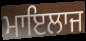
ਮਾਇਲਾਜ